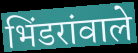
भिंडरांवाले